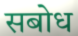
सबोध